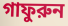
গাফুরুন